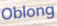
Oblong